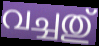
വച്ചതു്